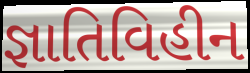
જ્ઞાતિવિહીન